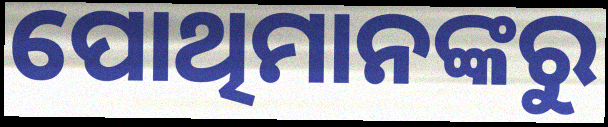
ପୋଥିମାନଙ୍କରୁ